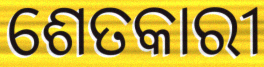
ଶେତକାରୀ